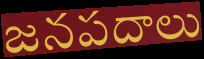
జనపదాలు